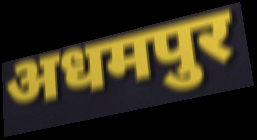
अधमपुर